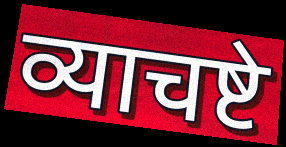
व्याचष्टे